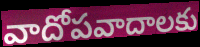
వాదోపవాదాలకు